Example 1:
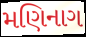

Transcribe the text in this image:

મણિનાગ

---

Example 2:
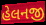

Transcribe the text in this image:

હેલનજી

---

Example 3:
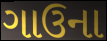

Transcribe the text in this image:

ગાઉના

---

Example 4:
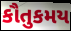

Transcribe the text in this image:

કૌતુકમય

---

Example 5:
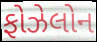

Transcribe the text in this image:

ફોઝેલોન